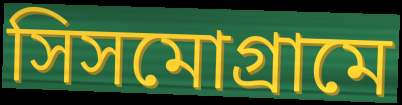
সিসমোগ্রামে